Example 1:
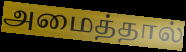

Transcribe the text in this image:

அமைத்தால்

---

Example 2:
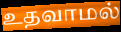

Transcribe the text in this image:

உதவாமல்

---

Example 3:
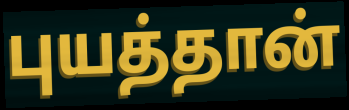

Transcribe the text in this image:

புயத்தான்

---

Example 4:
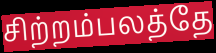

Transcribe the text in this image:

சிற்றம்பலத்தே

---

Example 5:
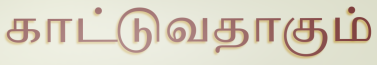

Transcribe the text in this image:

காட்டுவதாகும்